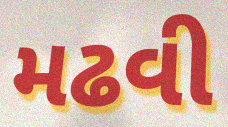
મઢવી